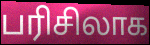
பரிசிலாக